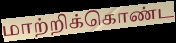
மாற்றிக்கொண்ட